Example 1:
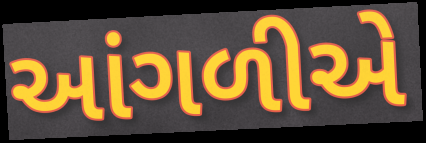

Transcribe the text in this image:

આંગળીએ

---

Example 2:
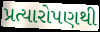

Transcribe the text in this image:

પ્રત્યારોપણથી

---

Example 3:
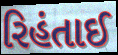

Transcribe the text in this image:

રિહંતાઈ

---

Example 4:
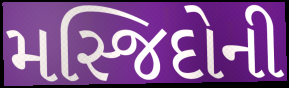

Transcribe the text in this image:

મસ્જિદોની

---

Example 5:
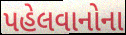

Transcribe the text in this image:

પહેલવાનોના